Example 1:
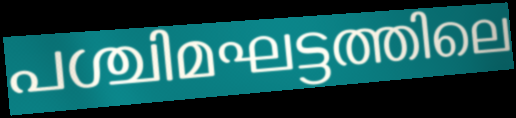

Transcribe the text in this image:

പശ്ചിമഘട്ടത്തിലെ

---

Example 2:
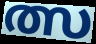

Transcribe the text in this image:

ത്സ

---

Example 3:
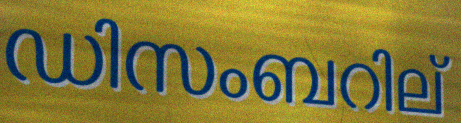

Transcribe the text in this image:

ഡിസംബറില്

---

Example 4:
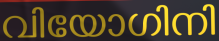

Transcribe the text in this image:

വിയോഗിനി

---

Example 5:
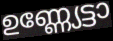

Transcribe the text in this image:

ഉണ്ണ്യേട്ടാ